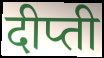
दीप्ती